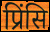
प्रिंसि